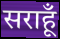
सराहूँ